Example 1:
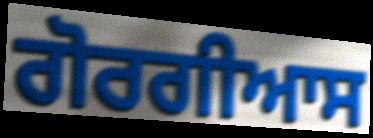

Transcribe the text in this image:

ਗੋਰਗੀਆਸ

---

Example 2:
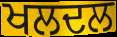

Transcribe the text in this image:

ਖਲਦਲ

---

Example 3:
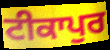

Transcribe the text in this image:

ਟੀਕਾਪੁਰ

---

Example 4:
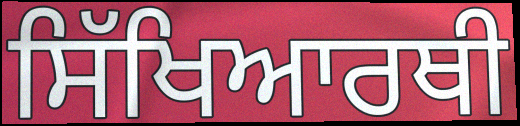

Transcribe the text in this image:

ਸਿੱਖਿਆਰਥੀ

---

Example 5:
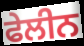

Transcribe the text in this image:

ਫੇਲੀਨ